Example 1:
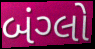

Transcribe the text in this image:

બંગ્લો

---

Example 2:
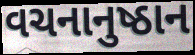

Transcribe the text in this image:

વચનાનુષ્ઠાન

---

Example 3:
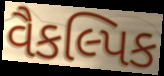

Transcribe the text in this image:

વૈકલ્પિક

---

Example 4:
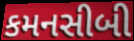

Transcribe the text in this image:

કમનસીબી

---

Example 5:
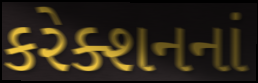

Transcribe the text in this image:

કરેક્શનનાં